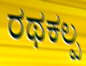
ರಥಕಲ್ಪ